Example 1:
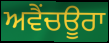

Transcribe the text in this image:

ਅਵੈਂਚਊਰਾ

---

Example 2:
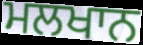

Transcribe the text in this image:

ਮਲਖਾਨ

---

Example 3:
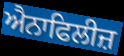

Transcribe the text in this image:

ਐਨਾਫਿਲੀਜ਼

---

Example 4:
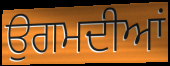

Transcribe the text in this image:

ਉਗਮਦੀਆਂ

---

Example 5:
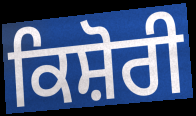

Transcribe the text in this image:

ਕਿਸ਼ੋਰੀ